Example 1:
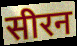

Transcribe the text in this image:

सीरन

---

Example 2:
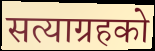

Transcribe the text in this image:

सत्याग्रहको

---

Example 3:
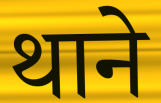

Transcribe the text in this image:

थाने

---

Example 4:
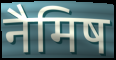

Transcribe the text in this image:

नैमिष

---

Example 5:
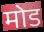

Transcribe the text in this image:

मोड